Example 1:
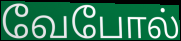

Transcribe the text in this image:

வேபோல்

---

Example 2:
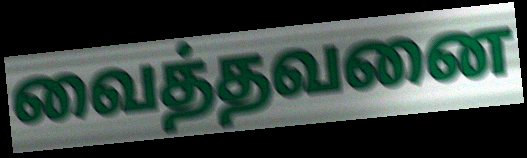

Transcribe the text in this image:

வைத்தவனை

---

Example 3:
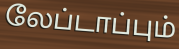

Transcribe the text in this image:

லேப்டாப்பும்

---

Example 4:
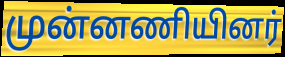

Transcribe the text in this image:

முன்னணியினர்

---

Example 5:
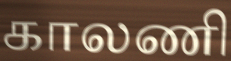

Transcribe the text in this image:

காலணி